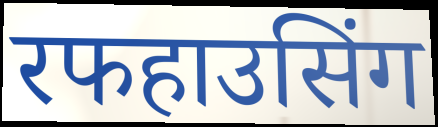
रफहाउसिंग